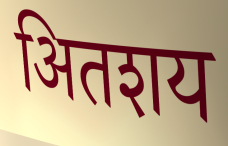
अितशय